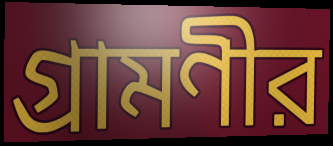
গ্রামণীর